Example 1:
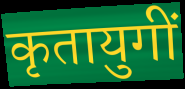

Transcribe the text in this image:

कृतायुगीं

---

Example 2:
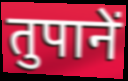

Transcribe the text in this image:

तुपानें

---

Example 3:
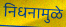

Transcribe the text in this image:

निधनामुळे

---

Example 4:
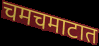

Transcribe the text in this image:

चमचमाटात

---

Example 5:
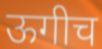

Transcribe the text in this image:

ऊगीच